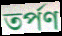
তৰ্পণ